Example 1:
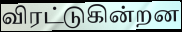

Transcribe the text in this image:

விரட்டுகின்றன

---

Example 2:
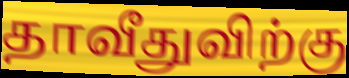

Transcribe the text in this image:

தாவீதுவிற்கு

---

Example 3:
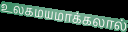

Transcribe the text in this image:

உலகமயமாக்கலால்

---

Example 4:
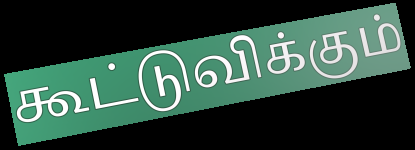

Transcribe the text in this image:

கூட்டுவிக்கும்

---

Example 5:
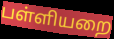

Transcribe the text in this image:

பள்ளியறை